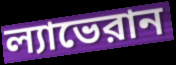
ল্যাভেরান